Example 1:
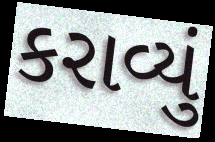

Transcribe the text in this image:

કરાવ્યું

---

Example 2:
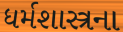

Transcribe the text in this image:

ધર્મશાસ્ત્રના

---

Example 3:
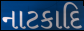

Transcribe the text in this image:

નાટકાદિ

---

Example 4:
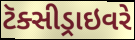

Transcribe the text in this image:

ટૅક્સીડ્રાઇવરે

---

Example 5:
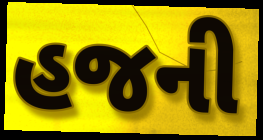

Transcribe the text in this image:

હજની